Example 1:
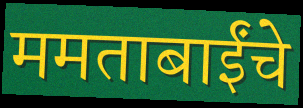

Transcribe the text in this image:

ममताबाईंचे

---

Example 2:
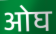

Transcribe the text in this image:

ओघ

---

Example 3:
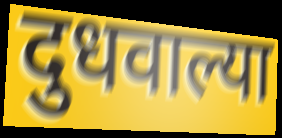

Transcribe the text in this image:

दुधवाल्या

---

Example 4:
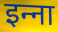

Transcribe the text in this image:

इन्ना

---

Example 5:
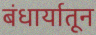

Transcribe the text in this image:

बंधार्यातून